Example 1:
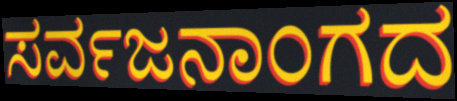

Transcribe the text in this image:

ಸರ್ವಜನಾಂಗದ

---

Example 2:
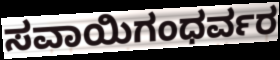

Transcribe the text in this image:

ಸವಾಯಿಗಂಧರ್ವರ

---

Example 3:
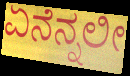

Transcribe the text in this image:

ಏನೆನ್ನಲೀ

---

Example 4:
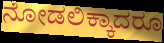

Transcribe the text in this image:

ನೋಡಲಿಕ್ಕಾದರೂ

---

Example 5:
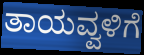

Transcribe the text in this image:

ತಾಯವ್ವಳಿಗೆ